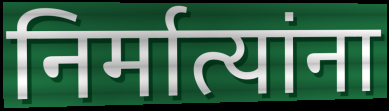
निर्मात्यांना